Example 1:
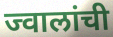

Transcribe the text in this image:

ज्वालांची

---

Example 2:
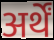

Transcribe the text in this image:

अर्थें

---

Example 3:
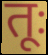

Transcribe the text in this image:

तूः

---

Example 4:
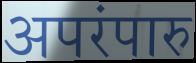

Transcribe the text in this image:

अपरंपारु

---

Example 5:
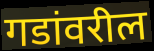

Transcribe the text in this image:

गडांवरील